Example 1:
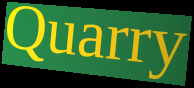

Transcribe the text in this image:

Quarry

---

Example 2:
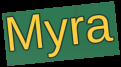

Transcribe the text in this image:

Myra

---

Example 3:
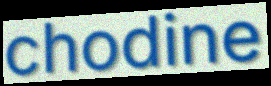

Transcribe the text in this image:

chodine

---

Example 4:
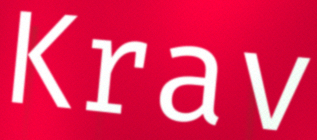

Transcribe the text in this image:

Krav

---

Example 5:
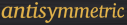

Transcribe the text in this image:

antisymmetric